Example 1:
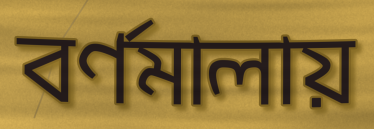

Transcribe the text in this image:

বর্ণমালায়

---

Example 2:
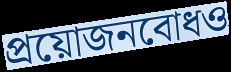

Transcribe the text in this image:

প্রয়োজনবোধও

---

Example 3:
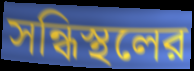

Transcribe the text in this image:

সন্ধিস্থলের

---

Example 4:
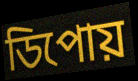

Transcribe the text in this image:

ডিপোয়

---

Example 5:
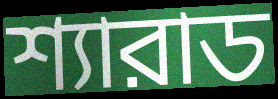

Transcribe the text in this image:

শ্যারাড